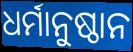
ଧର୍ମାନୁଷ୍ଠାନ